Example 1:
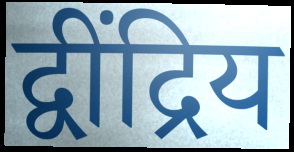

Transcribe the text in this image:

द्वींद्रिय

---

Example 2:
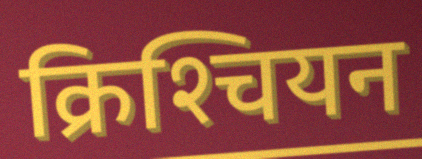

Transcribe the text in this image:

क्रिश्चियन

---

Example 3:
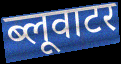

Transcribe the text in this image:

ब्लूवाटर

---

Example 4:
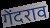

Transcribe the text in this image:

गेंदराव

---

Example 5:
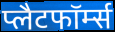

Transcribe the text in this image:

प्लैटफॉर्म्स